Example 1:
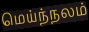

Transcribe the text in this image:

மெய்ந்நலம்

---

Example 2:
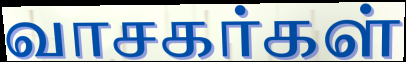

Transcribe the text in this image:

வாசகர்கள்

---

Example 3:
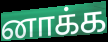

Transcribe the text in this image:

னாக்க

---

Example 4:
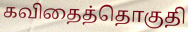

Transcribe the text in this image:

கவிதைத்தொகுதி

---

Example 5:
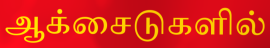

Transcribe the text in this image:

ஆக்சைடுகளில்